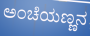
ಅಂಚೆಯಣ್ಣನ